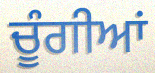
ਚੂੰਗੀਆਂ